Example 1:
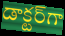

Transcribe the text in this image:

డాక్టర్‌గా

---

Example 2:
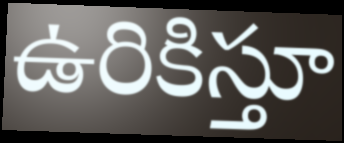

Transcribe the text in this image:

ఉరికిస్తూ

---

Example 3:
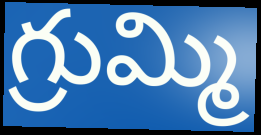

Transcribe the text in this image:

గ్రుమ్మి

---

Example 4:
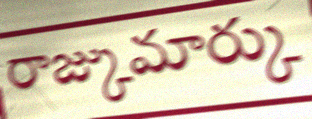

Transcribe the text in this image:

రాజ్కుమార్కు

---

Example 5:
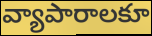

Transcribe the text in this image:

వ్యాపారాలకూ